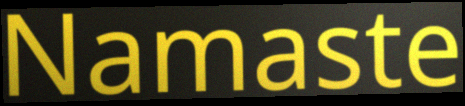
Namaste